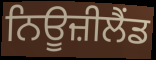
ਨਿਊਜ਼ੀਲੈੰਡ